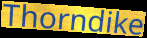
Thorndike